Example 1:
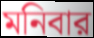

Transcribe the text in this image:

মনিবার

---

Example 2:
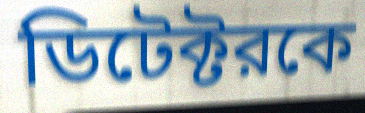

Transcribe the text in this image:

ডিটেক্টরকে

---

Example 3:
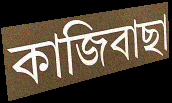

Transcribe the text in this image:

কাজিবাছা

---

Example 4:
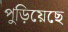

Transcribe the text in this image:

পুড়িয়েছে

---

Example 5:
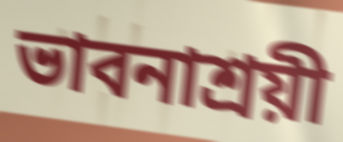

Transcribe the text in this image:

ভাবনাশ্রয়ী